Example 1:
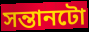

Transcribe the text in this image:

সন্তানটো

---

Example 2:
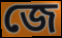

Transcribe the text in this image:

জে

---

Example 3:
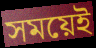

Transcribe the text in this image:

সময়েই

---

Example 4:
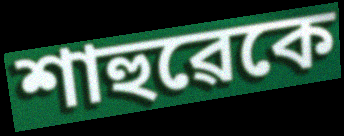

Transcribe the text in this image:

শাহুৱেকে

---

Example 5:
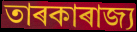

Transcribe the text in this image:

তাৰকাৰাজ্য